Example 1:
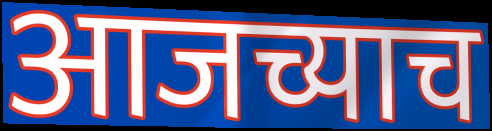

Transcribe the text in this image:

आजच्याच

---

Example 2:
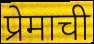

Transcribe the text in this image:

प्रेमाची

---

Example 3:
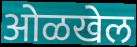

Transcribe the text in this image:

ओळखेल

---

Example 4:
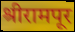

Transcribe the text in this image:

श्रीरामपूर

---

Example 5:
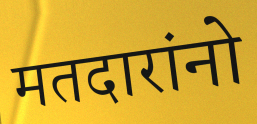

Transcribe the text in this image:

मतदारांनो